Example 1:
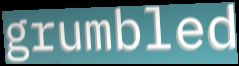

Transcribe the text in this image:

grumbled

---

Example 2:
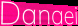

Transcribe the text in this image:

Danaei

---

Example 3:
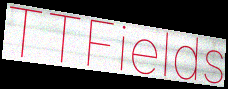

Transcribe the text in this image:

TTFields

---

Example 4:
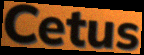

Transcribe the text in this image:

Cetus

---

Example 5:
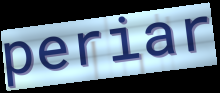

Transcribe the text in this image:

periar